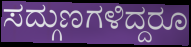
ಸದ್ಗುಣಗಳಿದ್ದರೂ